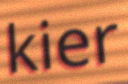
kier